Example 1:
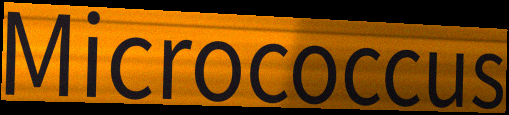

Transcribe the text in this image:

Micrococcus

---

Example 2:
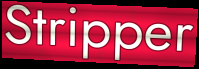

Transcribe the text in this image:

Stripper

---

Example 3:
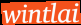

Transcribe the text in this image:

wintlai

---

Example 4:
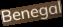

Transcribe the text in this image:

Benegal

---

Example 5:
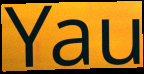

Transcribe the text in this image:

Yau